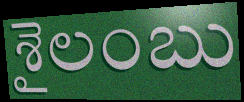
శైలంబు